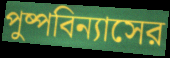
পুষ্পবিন্যাসের